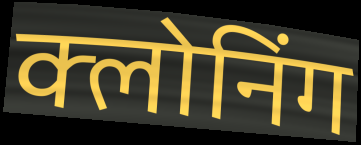
क्‍लोनिंग